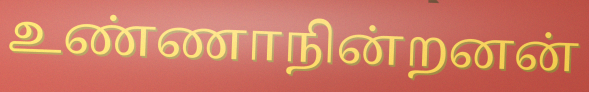
உண்ணாநின்றனன்